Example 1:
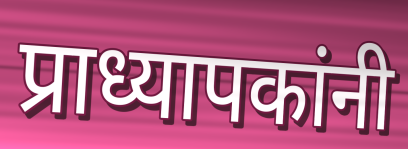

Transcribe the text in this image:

प्राध्यापकांनी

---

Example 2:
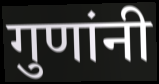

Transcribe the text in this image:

गुणांनी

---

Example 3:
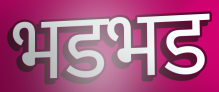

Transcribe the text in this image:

भडभड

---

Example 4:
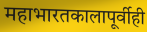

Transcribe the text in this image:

महाभारतकालापूर्वीही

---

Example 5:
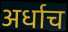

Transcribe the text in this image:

अर्धाच